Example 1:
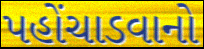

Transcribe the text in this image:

પહોંચાડવાનો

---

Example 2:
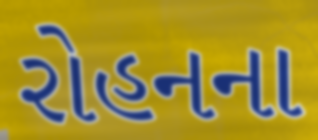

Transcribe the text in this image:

રોહનના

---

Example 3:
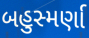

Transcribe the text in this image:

બહુસ્મર્ણા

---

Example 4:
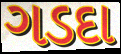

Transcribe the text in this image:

ગડદા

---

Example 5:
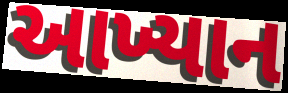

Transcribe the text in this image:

આખ્યાન